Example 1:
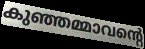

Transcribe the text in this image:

കുഞ്ഞമ്മാവന്റെ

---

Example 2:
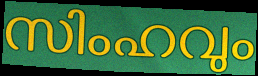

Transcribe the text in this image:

സിംഹവും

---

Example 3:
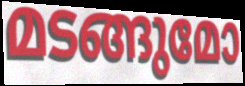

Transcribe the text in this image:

മടങ്ങുമോ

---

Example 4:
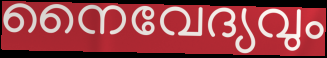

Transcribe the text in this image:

നൈവേദ്യവും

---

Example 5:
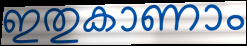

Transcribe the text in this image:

ഇതുകാണാം